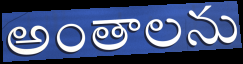
అంతాలను